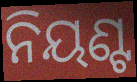
ନିୟଣ୍ଟ